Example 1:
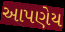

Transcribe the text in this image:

આપણેય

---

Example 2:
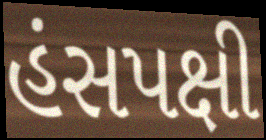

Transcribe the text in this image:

હંસપક્ષી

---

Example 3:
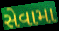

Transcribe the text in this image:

સેવામા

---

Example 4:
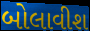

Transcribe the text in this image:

બોલાવીશ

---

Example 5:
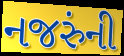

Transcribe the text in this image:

નજરુંની